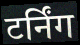
टर्निंग